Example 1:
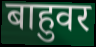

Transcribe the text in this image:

बाहुवर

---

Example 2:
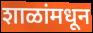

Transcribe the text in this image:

शाळांमधून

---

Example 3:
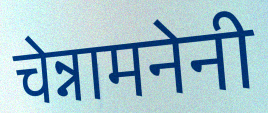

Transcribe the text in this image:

चेन्नामनेनी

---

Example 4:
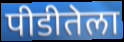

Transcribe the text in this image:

पीडीतेला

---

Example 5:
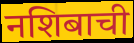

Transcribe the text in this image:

नशिबाची